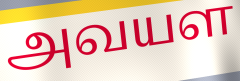
அவயள